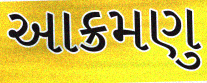
આક્રમણુ